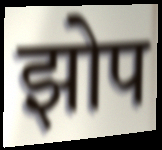
झोप